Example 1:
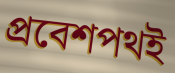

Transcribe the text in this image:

প্রবেশপথই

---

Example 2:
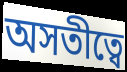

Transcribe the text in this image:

অসতীত্বে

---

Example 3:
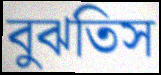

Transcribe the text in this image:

বুঝতিস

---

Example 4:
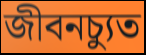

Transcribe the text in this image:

জীবনচ্যুত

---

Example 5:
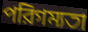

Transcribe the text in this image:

পরিগম্যতা